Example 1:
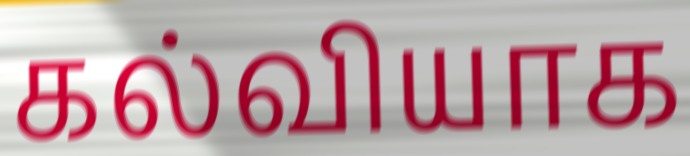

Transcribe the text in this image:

கல்வியாக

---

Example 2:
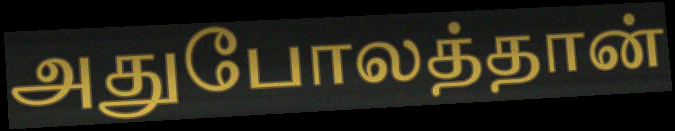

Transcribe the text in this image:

அதுபோலத்தான்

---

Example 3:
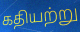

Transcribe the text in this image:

கதியற்று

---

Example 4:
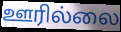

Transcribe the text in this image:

ஊரில்லை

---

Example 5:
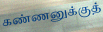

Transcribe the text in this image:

கண்ணனுக்குத்